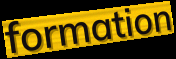
formation